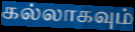
கல்லாகவும்